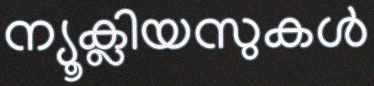
ന്യൂക്ലിയസുകൾ